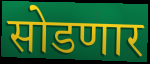
सोडणार